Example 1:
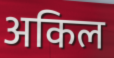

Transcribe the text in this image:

अकिल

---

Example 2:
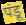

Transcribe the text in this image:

पंडू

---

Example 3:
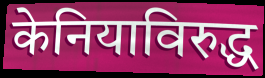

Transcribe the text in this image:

केनियाविरुद्ध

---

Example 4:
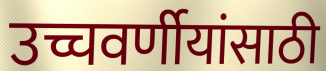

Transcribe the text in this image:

उच्चवर्णीयांसाठी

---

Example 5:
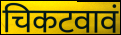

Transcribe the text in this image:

चिकटवावं